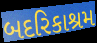
બદરિકાશ્રમ